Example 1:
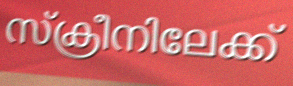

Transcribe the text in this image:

സ്‌ക്രീനിലേക്ക്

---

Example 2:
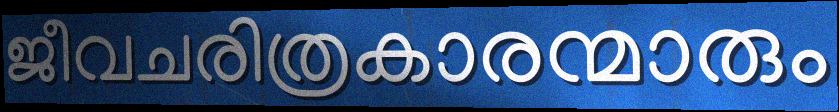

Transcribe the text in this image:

ജീവചരിത്രകാരന്മാരും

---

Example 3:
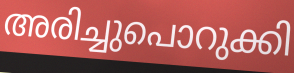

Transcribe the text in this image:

അരിച്ചുപൊറുക്കി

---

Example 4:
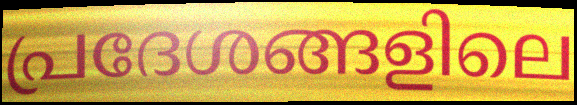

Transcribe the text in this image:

പ്രദേശങ്ങളിലെ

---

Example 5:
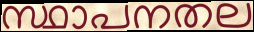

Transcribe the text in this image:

സ്ഥാപനതല